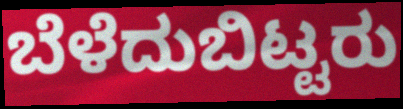
ಬೆಳೆದುಬಿಟ್ಟರು